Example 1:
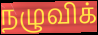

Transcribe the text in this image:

நழுவிக்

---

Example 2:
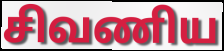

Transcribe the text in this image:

சிவணிய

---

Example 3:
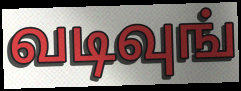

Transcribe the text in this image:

வடிவுங்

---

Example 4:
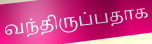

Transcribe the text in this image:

வந்திருப்பதாக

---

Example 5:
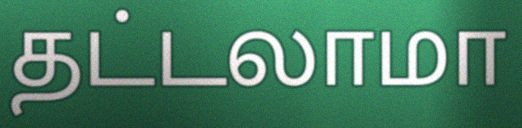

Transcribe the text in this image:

தட்டலாமா